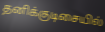
தனிக்குடிசையில்